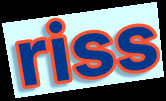
riss